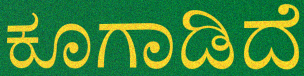
ಕೂಗಾಡಿದೆ